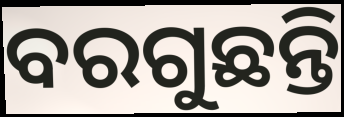
ବରଗୁଛନ୍ତି